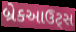
બ્રેકઆઉટ્સ